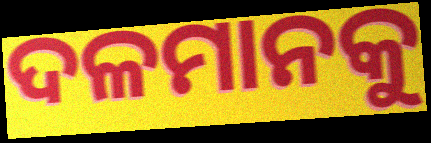
ଦଳମାନକୁ